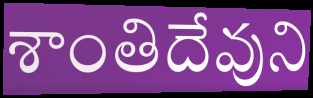
శాంతిదేవుని